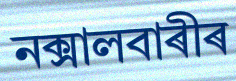
নক্সালবাৰীৰ